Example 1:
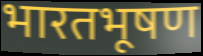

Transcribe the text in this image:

भारतभूषण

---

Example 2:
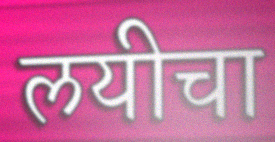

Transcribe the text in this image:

लयीचा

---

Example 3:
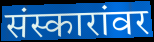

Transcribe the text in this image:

संस्कारांवर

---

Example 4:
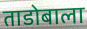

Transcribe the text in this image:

ताडोबाला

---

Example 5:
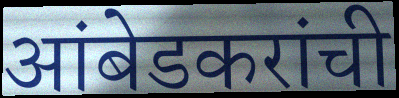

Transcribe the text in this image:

आंबेडकरांची